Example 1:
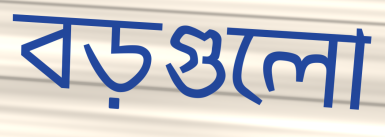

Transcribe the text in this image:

বড়গুলো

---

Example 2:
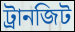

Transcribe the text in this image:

ট্রানজিট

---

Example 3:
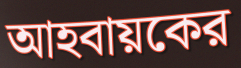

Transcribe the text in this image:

আহবায়কের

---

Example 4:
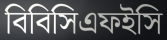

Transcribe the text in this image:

বিবিসিএফইসি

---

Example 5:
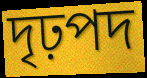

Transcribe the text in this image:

দৃঢ়পদ